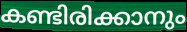
കണ്ടിരിക്കാനും